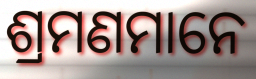
ଶ୍ରମଣମାନେ